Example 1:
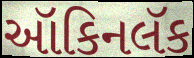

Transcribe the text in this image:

ઑકિનલૅક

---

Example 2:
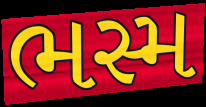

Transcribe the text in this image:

ભસ્મ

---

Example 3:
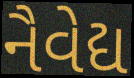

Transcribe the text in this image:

નૈવેદ્ય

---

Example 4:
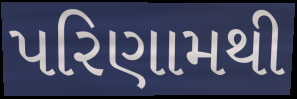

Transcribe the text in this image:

પરિણામથી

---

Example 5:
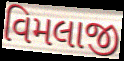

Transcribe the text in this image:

વિમલાજી